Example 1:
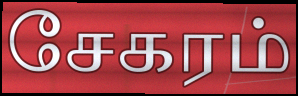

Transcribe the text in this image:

சேகரம்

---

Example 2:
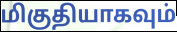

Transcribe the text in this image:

மிகுதியாகவும்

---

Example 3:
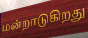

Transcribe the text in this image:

மன்றாடுகிறது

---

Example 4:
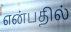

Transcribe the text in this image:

என்பதில்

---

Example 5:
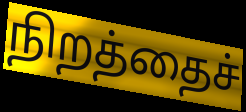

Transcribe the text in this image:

நிறத்தைச்